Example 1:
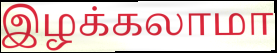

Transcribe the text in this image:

இழக்கலாமா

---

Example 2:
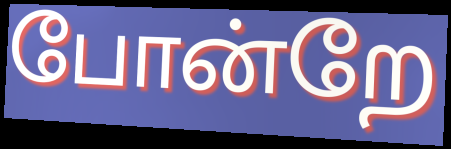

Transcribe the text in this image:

போன்றே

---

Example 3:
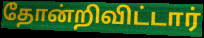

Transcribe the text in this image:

தோன்றிவிட்டார்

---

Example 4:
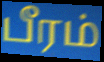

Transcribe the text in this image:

பீரம்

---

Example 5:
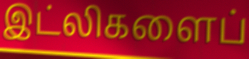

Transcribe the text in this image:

இட்லிகளைப்